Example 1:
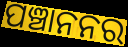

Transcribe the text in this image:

ପଞ୍ଚାନନର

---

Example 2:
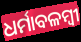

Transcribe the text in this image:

ଧର୍ମାବଳମ୍ବୀ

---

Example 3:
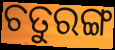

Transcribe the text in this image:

ଚତୁରଙ୍ଗ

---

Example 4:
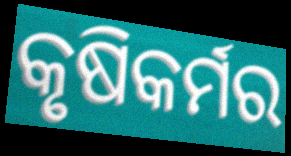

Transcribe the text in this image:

କୃଷିକର୍ମର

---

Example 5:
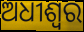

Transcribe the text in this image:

ଅଧୀଶ୍ୱର